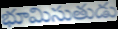
భూమిసుతుడు